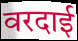
वरदाई